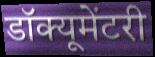
डॉक्यूमेंटरी